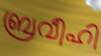
ബ്രവീഹി